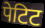
पेटिट